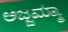
ಅಜ್ಜಮ್ಮಾ